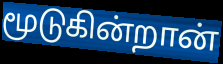
மூடுகின்றான்